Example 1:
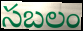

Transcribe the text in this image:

సబలం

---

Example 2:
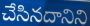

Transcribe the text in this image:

చేసినదానిని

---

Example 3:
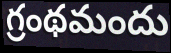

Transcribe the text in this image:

గ్రంథమందు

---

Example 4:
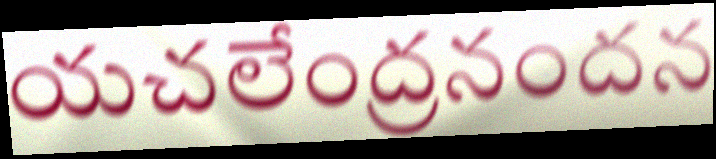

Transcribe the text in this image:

యచలేంద్రనందన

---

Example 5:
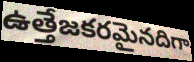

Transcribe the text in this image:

ఉత్తేజకరమైనదిగా